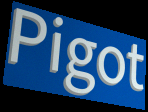
Pigot